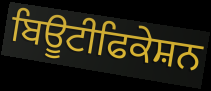
ਬਿਊਟੀਫਿਕੇਸ਼ਨ